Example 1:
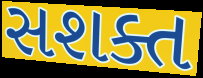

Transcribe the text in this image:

સશક્ત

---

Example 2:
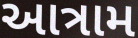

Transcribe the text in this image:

આત્રામ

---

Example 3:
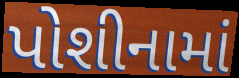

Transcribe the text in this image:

પોશીનામાં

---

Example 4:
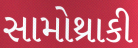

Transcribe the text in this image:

સામોથ્રાકી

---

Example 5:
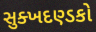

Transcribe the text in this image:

સુક્ખદણ્ડકો